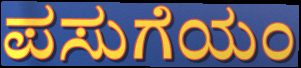
ಪಸುಗೆಯಂ